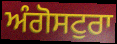
ਅੰਗੋਸਟੁਰਾ